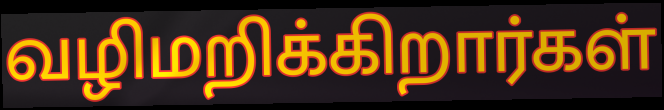
வழிமறிக்கிறார்கள்